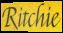
Ritchie